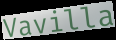
Vavilla